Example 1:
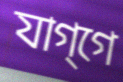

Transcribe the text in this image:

যাগ্‌গে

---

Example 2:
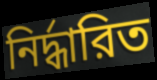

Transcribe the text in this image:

নির্দ্ধারিত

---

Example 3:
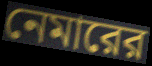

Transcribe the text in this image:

নেমারের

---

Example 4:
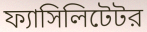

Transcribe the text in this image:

ফ্যাসিলিটেটর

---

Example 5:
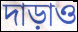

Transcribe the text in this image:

দাড়াও